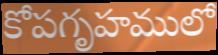
కోపగృహములో